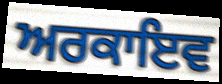
ਅਰਕਾਇਵ